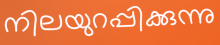
നിലയുറപ്പിക്കുന്നു